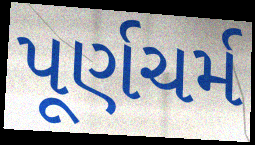
પૂર્ણચર્મ